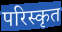
परिस्कृत